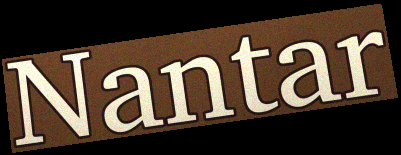
Nantar